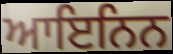
ਆਇਨਿਨ